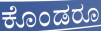
ಕೊಂಡರೂ